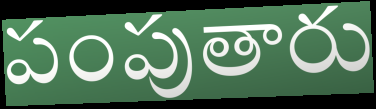
పంపుతారు